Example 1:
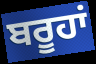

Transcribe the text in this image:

ਬਰੂਹਾਂ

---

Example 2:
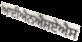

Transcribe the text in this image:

ਆਈਐਨਐਸਏਐਸ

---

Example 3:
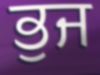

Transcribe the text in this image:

ਭੁਜ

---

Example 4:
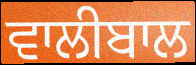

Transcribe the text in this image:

ਵਾਲੀਬਾਲ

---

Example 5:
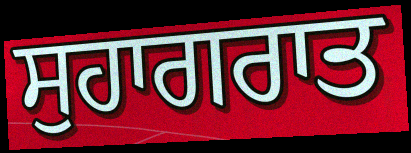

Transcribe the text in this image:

ਸੁਹਾਗਰਾਤ